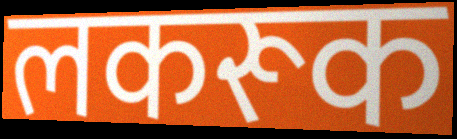
लकरूक